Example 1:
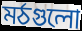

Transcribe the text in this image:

মঠগুলো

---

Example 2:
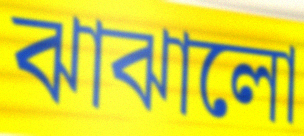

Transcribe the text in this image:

ঝাঝালো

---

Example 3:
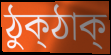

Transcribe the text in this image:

ঠুক্ঠাক্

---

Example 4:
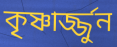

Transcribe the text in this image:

কৃষ্ণার্জ্জুন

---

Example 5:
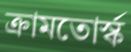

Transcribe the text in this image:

ক্রামতোর্স্ক